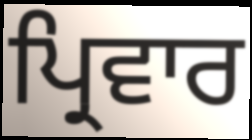
ਪ੍ਰਿਵਾਰ